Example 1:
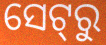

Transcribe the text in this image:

ସେଟ୍‌ରୁ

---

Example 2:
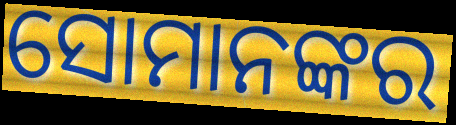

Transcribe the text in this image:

ସୋମାନଙ୍କର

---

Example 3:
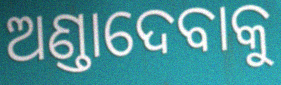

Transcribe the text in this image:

ଅଣ୍ଡାଦେବାକୁ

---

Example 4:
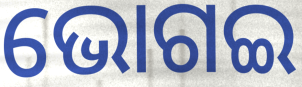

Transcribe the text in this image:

ଭୋଗଇ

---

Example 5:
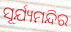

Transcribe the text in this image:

ସୂର୍ଯ୍ୟମନ୍ଦିର